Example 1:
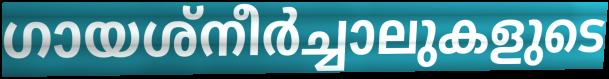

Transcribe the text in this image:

ഗായശ്നീർച്ചാലുകളുടെ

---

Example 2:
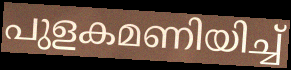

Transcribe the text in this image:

പുളകമണിയിച്ച്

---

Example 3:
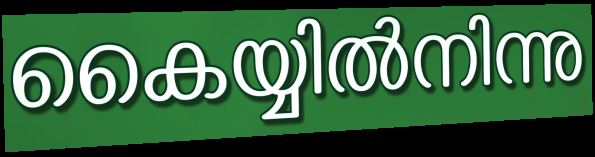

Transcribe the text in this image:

കൈയ്യിൽനിന്നു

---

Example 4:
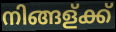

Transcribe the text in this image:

നിങ്ങള്ക്ക്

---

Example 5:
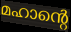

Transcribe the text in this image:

മഹാന്റെ